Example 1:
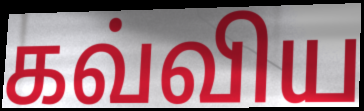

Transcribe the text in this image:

கவ்விய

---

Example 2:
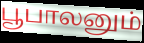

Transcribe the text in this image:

பூபாலனும்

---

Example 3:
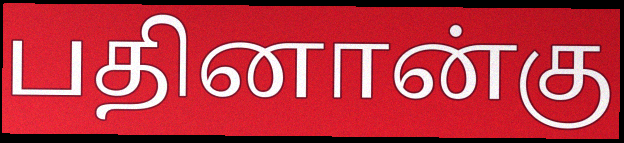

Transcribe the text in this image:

பதினான்கு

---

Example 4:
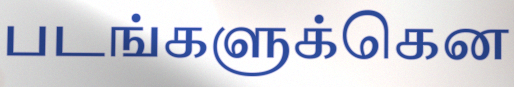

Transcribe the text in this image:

படங்களுக்கென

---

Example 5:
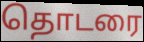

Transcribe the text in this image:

தொடரை